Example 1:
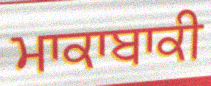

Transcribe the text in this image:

ਮਾਕਾਬਾਕੀ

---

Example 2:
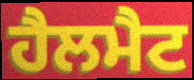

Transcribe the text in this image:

ਹੈਲਮੈਟ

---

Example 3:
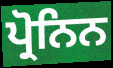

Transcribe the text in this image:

ਪ੍ਰੋਨਿਨ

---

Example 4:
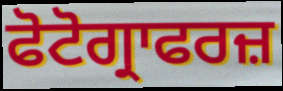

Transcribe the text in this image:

ਫੋਟੋਗ੍ਰਾਫਰਜ਼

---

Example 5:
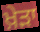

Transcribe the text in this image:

ਖ਼ੇੜਾ